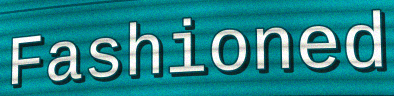
Fashioned